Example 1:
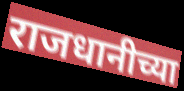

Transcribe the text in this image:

राजधानीच्या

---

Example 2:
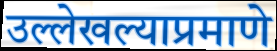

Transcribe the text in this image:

उल्लेखल्याप्रमाणे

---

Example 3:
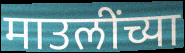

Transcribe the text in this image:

माउलींच्या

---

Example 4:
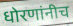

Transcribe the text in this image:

धोरणांनीच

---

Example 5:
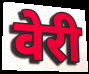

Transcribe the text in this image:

वेरी